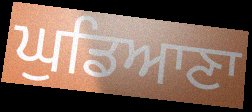
ਘੁਡਿਆਣਾ